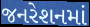
જનરેશનમાં